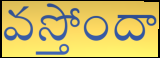
వస్తోందా